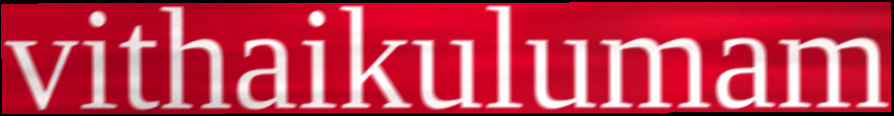
vithaikulumam